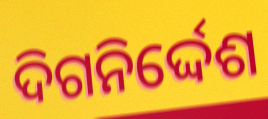
ଦିଗନିର୍ଦ୍ଦେଶ